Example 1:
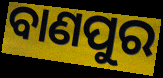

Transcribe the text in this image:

ବାଣପୁର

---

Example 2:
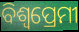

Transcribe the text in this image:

ବିଶ୍ବପ୍ରେମୀ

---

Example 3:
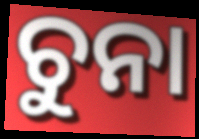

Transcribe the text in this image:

ଚୁନା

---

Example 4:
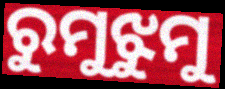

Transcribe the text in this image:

ରୁମୁଝୁମୁ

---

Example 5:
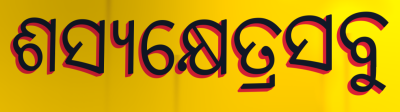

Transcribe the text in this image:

ଶସ୍ୟକ୍ଷେତ୍ରସବୁ